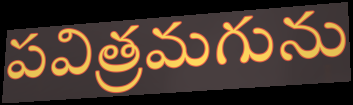
పవిత్రమగును